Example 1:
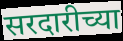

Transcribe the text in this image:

सरदारीच्या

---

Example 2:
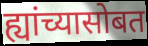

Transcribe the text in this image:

ह्यांच्यासोबत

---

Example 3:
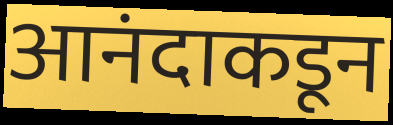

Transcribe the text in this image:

आनंदाकडून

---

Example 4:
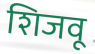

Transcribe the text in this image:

शिजवू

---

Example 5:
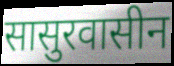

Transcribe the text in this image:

सासुरवासीन